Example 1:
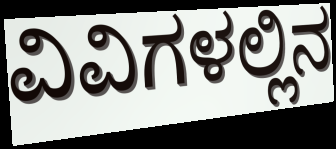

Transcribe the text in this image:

ವಿವಿಗಳಲ್ಲಿನ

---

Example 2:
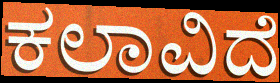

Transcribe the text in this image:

ಕಲಾವಿದೆ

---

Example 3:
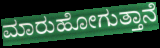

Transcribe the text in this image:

ಮಾರುಹೋಗುತ್ತಾನೆ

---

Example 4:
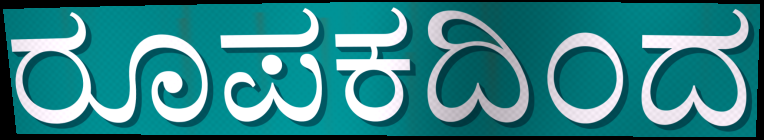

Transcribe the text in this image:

ರೂಪಕದಿಂದ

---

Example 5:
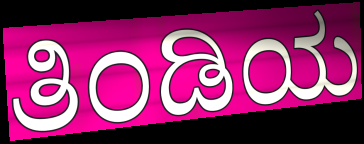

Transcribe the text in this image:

ತಿಂಡಿಯ